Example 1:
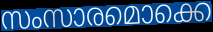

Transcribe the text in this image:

സംസാരമൊക്കെ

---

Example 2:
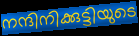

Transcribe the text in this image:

നന്ദിനിക്കുട്ടിയുടെ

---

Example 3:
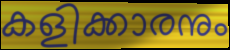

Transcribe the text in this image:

കളിക്കാരനും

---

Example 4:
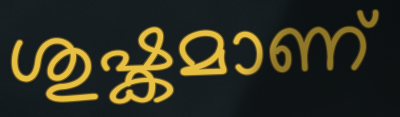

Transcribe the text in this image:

ശുഷ്കമാണ്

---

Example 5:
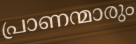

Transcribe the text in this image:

പ്രാണന്മാരും